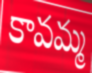
కావమ్మ